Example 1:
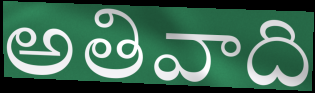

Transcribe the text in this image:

అతివాది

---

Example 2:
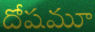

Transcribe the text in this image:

దోషమూ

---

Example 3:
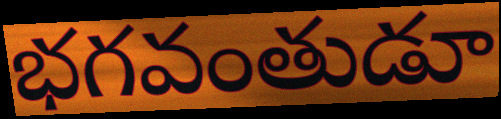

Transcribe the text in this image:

భగవంతుడూ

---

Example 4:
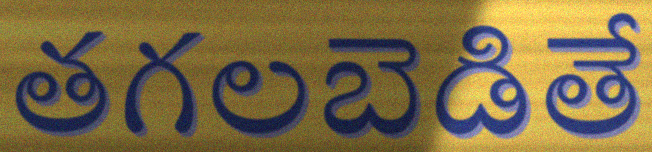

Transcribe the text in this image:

తగలబెడితే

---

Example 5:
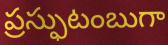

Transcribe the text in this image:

ప్రస్ఫుటంబుగా